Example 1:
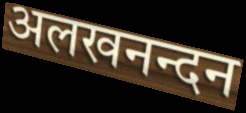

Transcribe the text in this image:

अलखनन्दन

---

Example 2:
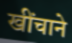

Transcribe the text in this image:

खींचाने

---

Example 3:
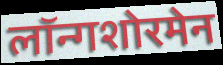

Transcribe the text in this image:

लॉन्गशोरमेन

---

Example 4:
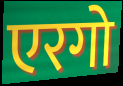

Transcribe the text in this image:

एरगो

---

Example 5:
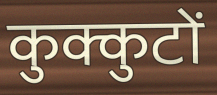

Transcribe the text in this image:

कुक्कुटों